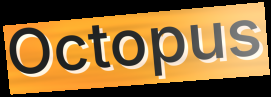
Octopus